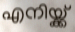
എനിയ്ക്ക്